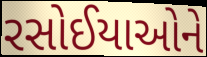
રસોઈયાઓને